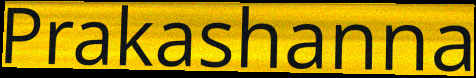
Prakashanna